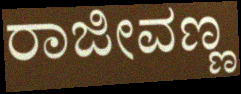
ರಾಜೀವಣ್ಣ